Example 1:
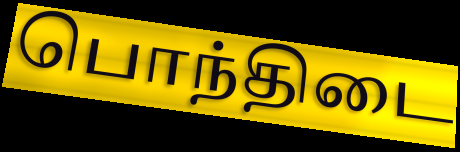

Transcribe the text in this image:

பொந்திடை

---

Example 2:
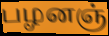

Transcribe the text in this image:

பழனஞ்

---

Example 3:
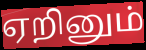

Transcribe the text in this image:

ஏறினும்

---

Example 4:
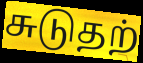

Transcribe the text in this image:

சுடுதற்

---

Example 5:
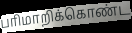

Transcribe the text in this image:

பரிமாறிக்கொண்ட